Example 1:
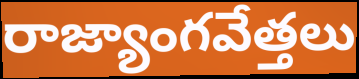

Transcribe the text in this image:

రాజ్యాంగవేత్తలు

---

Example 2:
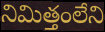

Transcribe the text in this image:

నిమిత్తంలేని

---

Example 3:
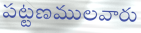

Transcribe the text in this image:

పట్టణములవారు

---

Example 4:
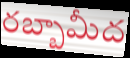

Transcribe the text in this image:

రబ్బామీద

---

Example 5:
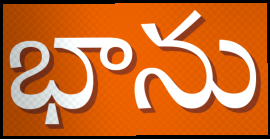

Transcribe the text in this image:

భాను